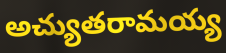
అచ్యుతరామయ్య